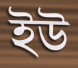
ইউ